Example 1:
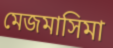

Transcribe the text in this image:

মেজমাসিমা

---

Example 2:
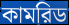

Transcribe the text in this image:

কামরিড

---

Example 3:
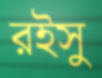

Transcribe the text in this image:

রইসু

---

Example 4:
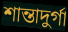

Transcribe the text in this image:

শান্তাদুর্গা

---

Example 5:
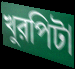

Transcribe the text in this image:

খুরপিটা